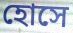
হোসে